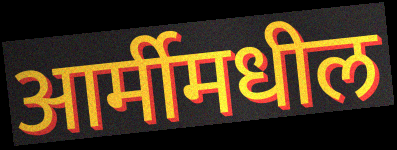
आर्मीमधील